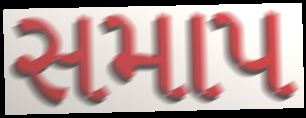
સમાપ